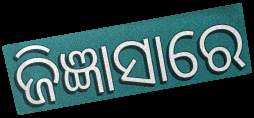
ଜିଜ୍ଞାସାରେ